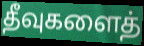
தீவுகளைத்